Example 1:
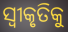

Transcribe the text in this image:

ସ୍ବୀକୃତିକୁ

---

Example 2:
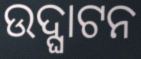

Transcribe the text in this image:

ଉଦ୍ଘାଟନ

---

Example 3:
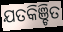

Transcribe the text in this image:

ଯତକିଞ୍ଚିତ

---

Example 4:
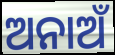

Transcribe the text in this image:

ଅନାଅଁ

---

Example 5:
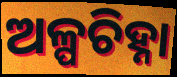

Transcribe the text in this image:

ଅଳ୍ପଚିହ୍ନା